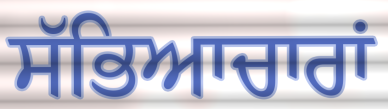
ਸੱਭਿਆਚਾਰਾਂ